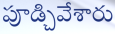
పూడ్చివేశారు